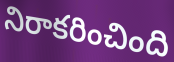
నిరాకరించింది